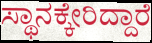
ಸ್ಥಾನಕ್ಕೇರಿದ್ದಾರೆ